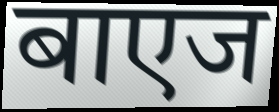
बाएज